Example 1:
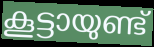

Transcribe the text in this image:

കൂട്ടായുണ്ട്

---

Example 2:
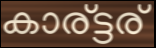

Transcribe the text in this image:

കാര്ട്ടര്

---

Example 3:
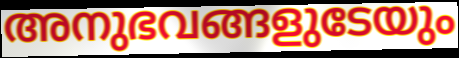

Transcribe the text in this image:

അനുഭവങ്ങളുടേയും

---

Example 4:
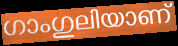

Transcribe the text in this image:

ഗാംഗുലിയാണ്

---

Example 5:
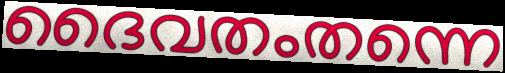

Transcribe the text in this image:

ദൈവതംതന്നെ